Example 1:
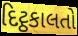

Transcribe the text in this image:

દિટ્ઠકાલતો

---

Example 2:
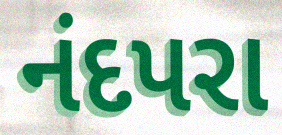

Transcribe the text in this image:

નંદપરા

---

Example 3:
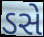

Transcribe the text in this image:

ડસે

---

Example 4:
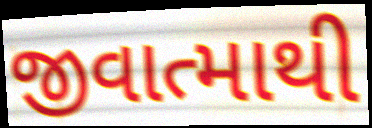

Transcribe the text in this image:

જીવાત્માથી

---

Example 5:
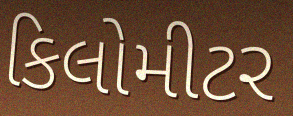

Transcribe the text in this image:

કિલોમીટર